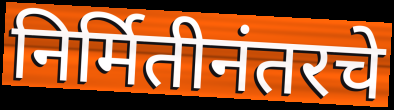
निर्मितीनंतरचे